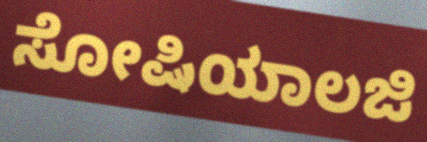
ಸೋಷಿಯಾಲಜಿ